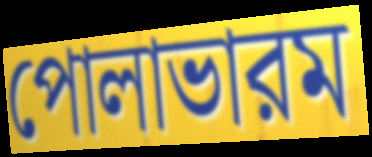
পোলাভারম